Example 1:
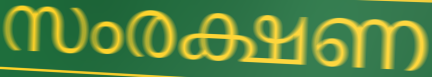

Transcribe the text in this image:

സംരക്ഷണ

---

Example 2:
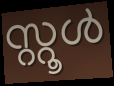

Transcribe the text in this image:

സ്റ്റൂൾ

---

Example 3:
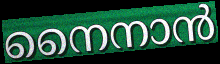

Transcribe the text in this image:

നൈനാൻ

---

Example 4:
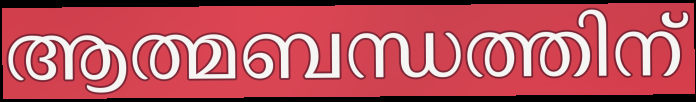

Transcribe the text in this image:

ആത്മബന്ധത്തിന്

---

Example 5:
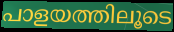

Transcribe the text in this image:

പാളയത്തിലൂടെ